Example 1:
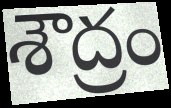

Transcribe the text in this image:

శౌద్రం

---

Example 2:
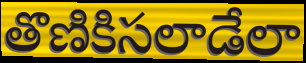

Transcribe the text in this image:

తొణికిసలాడేలా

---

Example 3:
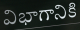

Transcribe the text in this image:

విభాగానికి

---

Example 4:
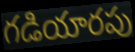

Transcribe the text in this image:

గడియారపు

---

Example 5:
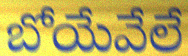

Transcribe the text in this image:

బోయేవేలే